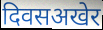
दिवसअखेर